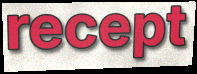
recept